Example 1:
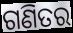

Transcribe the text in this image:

ଗଣିତର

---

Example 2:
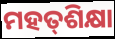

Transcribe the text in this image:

ମହତ୍‌ଶିକ୍ଷା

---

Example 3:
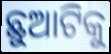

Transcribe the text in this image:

ଛୁଆଟିକୁ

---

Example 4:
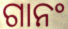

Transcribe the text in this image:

ଗାନଂ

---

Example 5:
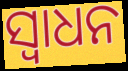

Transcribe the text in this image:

ସ୍ଵାଧନ